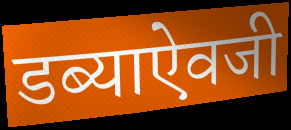
डब्याऐवजी